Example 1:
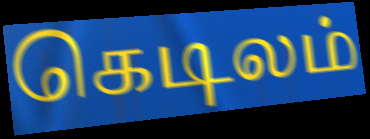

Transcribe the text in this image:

கெடிலம்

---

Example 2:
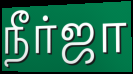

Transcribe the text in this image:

நீர்ஜா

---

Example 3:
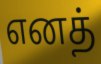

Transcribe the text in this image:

எனத்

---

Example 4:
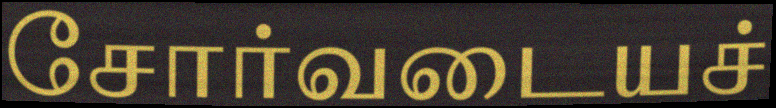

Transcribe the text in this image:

சோர்வடையச்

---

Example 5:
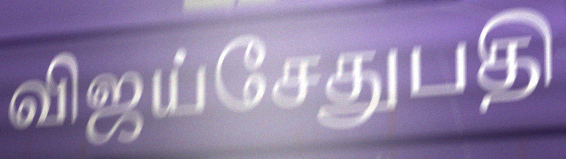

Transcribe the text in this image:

விஜய்சேதுபதி